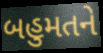
બહુમતને